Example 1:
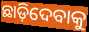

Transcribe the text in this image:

ଛାଡ଼ିଦେବାକୁ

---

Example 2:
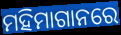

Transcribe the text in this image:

ମହିମାଗାନରେ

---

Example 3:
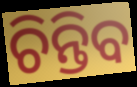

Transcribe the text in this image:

ଚିନ୍ତିବ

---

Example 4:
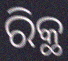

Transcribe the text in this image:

ରିକ୍ଥ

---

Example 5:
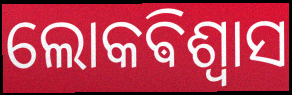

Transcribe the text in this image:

ଲୋକଵିଶ୍ଵାସ